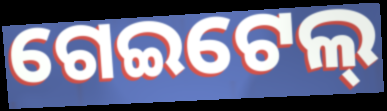
ଗେଇଟେଲ୍